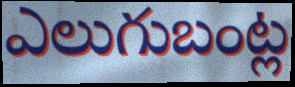
ఎలుగుబంట్ల